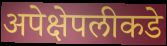
अपेक्षेपलीकडे